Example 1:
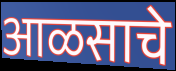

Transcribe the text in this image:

आळसाचे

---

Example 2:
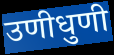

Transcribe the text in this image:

उणीधुणी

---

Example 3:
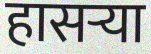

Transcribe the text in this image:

हासऱ्या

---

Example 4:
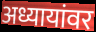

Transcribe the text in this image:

अध्यायांवर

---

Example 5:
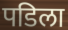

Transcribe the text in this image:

पडिला